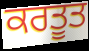
ਕਰਤੂਤ